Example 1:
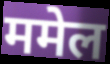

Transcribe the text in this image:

ममेल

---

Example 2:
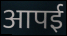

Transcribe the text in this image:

आपई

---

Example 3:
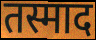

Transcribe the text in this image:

तस्माद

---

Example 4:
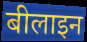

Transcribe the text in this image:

बीलाइन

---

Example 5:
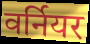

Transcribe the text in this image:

वर्नियर